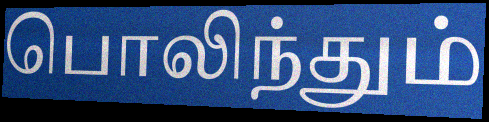
பொலிந்தும்